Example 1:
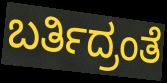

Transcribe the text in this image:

ಬರ್ತಿದ್ರಂತೆ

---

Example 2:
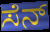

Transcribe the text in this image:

ಸೆನ್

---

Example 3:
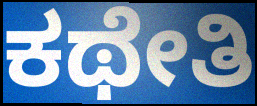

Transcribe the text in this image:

ಕಥೇತಿ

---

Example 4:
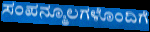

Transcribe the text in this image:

ಸಂಪನ್ಮೂಲಗಳೊಂದಿಗೆ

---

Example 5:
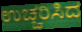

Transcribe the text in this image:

ಉಚ್ಚರಿಸಿದ